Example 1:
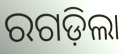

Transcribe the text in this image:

ରଗଡ଼ିଲା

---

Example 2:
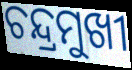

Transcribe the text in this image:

ଚନ୍ଦ୍ରମୁଖୀ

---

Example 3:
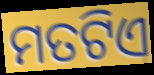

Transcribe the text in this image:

ମତଟିଏ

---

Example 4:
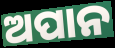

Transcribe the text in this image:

ଅପାନ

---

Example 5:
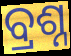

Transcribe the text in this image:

ବ୍ରଶ୍ନ